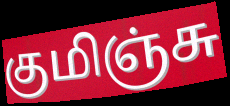
குமிஞ்சு